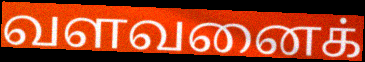
வளவனைக்